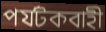
পর্যটকবাহী